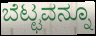
ಬೆಟ್ಟವನ್ನೂ